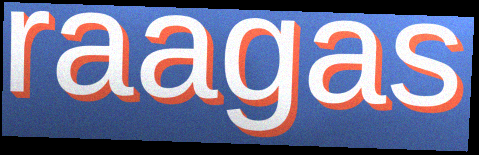
raagas